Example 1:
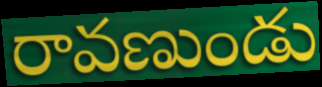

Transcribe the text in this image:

రావణుండు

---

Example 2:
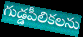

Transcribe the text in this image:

గుడ్డపీలికలను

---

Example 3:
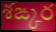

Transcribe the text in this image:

శఙ్కర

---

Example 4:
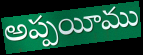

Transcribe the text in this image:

అప్పయీము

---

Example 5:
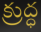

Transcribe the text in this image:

క్రుద్ధ